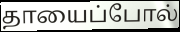
தாயைப்போல்